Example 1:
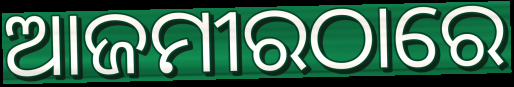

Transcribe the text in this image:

ଆଜମୀରଠାରେ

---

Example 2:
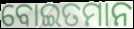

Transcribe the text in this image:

ବୋଇତମାନ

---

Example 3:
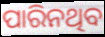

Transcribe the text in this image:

ପାରିନଥିବ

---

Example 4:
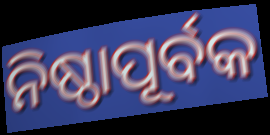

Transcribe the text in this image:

ନିଷ୍ଠାପୂର୍ବକ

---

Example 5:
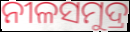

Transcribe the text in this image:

ନୀଳସମୁଦ୍ର